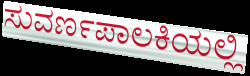
ಸುವರ್ಣಪಾಲಕಿಯಲ್ಲಿ